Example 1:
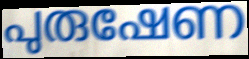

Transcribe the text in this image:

പുരുഷേണ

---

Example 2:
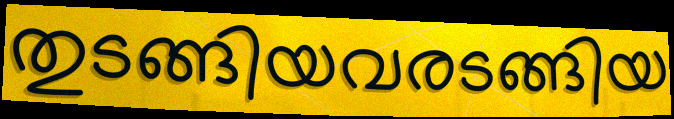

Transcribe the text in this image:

തുടങ്ങിയവരടങ്ങിയ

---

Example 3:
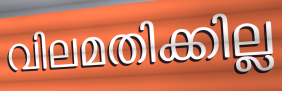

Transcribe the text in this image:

വിലമതിക്കില്ല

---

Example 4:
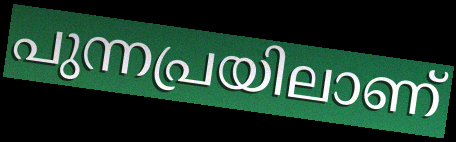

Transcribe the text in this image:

പുന്നപ്രയിലാണ്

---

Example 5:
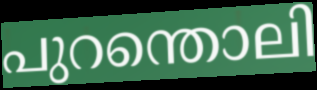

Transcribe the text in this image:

പുറന്തൊലി